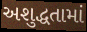
અશુદ્ધતામાં